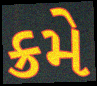
ક્રમે